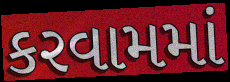
કરવામમાં